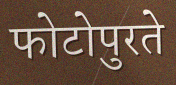
फोटोपुरते